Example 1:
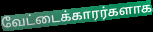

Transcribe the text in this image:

வேட்டைக்காரர்களாக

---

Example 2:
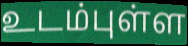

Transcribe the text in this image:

உடம்புள்ள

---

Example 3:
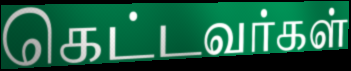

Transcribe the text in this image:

கெட்டவர்கள்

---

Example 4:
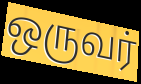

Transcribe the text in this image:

ஒருவர்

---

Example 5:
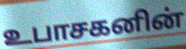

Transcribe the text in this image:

உபாசகனின்